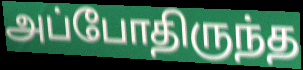
அப்போதிருந்த